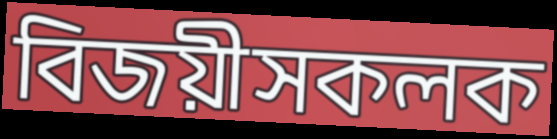
বিজয়ীসকলক